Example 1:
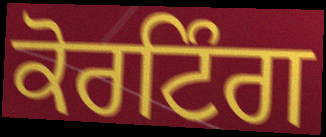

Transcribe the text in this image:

ਕੋਰਟਿੰਗ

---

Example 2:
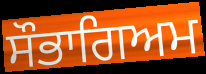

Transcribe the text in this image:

ਸੌਭਾਗਿਅਮ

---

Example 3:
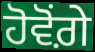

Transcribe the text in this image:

ਹੋਵੋਂਗ਼ੇ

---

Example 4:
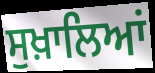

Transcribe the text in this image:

ਸੁਖ਼ਾਲਿਆਂ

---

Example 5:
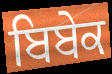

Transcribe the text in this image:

ਬਿਬੇਕ